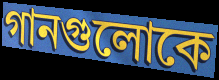
গানগুলোকে